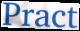
Pract